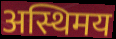
अस्थिमय